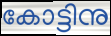
കോട്ടിനു